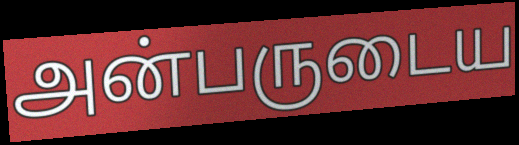
அன்பருடைய